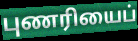
புணரியைப்